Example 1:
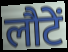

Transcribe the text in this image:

लौटें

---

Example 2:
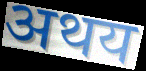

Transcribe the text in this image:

अथय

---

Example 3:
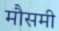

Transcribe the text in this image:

मौसमी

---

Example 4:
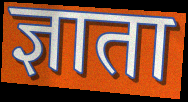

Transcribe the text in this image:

ज्ञाता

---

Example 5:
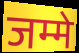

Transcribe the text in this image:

जम्मे